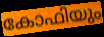
കോഫിയും